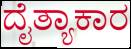
ದೈತ್ಯಾಕಾರ